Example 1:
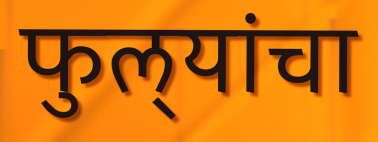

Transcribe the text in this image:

फुल्यांचा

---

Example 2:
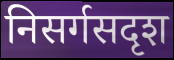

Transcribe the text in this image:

निसर्गसदृश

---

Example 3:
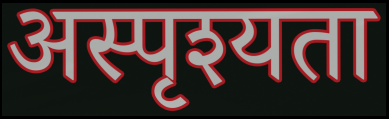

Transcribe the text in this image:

अस्पृश्यता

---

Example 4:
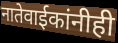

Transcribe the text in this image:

नातेवाईकांनीही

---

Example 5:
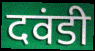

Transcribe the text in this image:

दवंडी